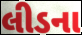
લીડના